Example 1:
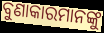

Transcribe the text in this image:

ବୁଣାକାରମାନଙ୍କୁ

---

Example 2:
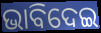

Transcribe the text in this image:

ଭାବିଦେଇ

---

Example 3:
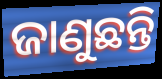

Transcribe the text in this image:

ଜାଣୁଛନ୍ତି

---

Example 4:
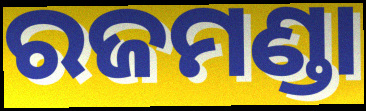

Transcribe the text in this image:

ରଜମଣ୍ଡା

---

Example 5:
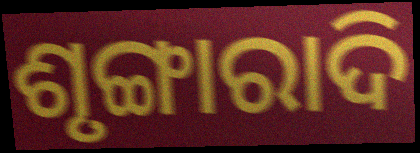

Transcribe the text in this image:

ଶୃଙ୍ଗାରାଦି